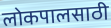
लोकपालसाठी